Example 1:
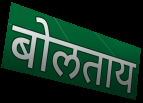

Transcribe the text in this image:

बोलताय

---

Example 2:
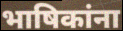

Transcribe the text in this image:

भाषिकांना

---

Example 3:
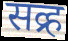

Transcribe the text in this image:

सव्र्ह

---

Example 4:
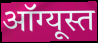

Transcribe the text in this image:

ऑग्यूस्त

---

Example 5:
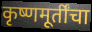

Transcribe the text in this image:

कृष्णमूर्तींचा